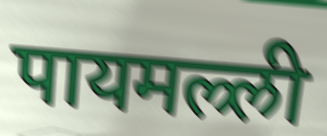
पायमल्ली